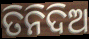
ତିନିଦିଅ